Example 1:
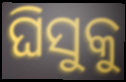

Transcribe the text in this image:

ଘିସୁକୁ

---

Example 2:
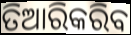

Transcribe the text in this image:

ତିଆରିକରିବ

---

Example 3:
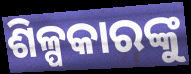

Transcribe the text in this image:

ଶିଳ୍ପକାରଙ୍କୁ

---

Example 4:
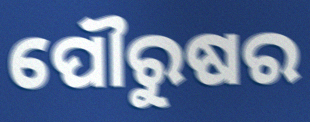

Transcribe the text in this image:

ପୌରୁଷର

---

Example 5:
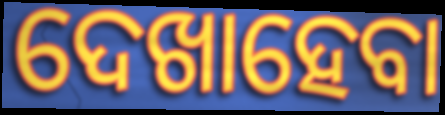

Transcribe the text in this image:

ଦେଖାହେବା